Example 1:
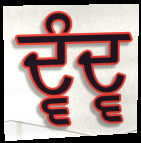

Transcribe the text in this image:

ਦ੍ਵੰਦ੍ਵ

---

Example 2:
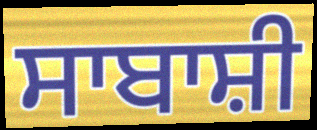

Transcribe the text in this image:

ਸਾਬਾਸ਼ੀ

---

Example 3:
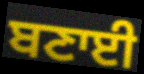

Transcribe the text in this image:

ਬਣਾਈ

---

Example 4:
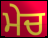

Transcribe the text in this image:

ਮੇਚ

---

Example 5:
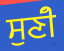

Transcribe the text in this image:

ਸੁਣੀਁ